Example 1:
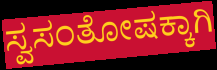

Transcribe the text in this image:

ಸ್ವಸಂತೋಷಕ್ಕಾಗಿ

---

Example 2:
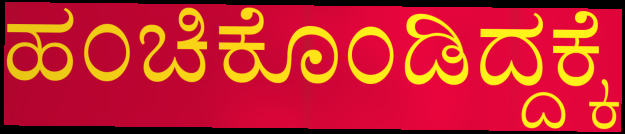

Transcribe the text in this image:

ಹಂಚಿಕೊಂಡಿದ್ದಕ್ಕೆ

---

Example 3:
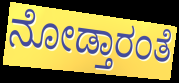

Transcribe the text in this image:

ನೋಡ್ತಾರಂತೆ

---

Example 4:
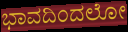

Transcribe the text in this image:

ಭಾವದಿಂದಲೋ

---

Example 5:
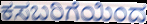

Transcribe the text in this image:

ಕಸಬರಿಗೆಯಿಂದ